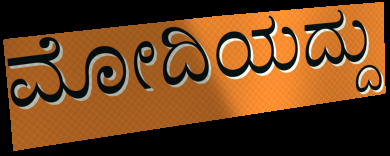
ಮೋದಿಯದ್ದು